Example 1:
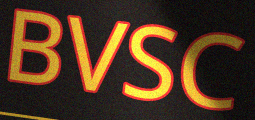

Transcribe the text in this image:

BVSC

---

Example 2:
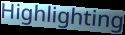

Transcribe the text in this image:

Highlighting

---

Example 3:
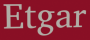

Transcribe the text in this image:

Etgar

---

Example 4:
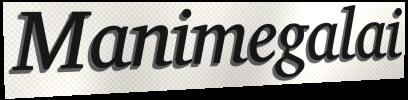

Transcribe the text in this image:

Manimegalai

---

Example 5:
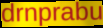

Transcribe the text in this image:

drnprabu